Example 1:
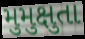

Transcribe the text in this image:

મુમુક્ષુતા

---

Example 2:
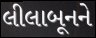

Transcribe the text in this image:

લીલાબૂનને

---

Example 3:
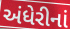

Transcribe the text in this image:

અંધેરીનાં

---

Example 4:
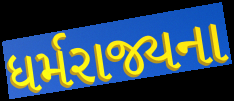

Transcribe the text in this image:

ધર્મરાજ્યના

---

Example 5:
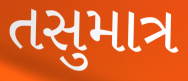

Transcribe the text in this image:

તસુમાત્ર